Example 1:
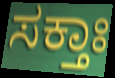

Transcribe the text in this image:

ಸಕ್ತಾಃ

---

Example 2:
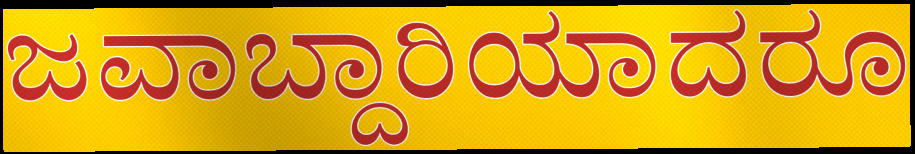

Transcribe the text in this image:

ಜವಾಬ್ದಾರಿಯಾದರೂ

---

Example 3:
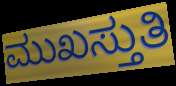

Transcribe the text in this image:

ಮುಖಸ್ತುತಿ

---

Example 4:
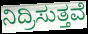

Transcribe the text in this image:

ನಿದ್ರಿಸುತ್ತವೆ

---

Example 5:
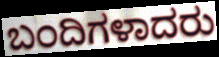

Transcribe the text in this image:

ಬಂದಿಗಳಾದರು